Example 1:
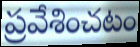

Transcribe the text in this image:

ప్రవేశించటం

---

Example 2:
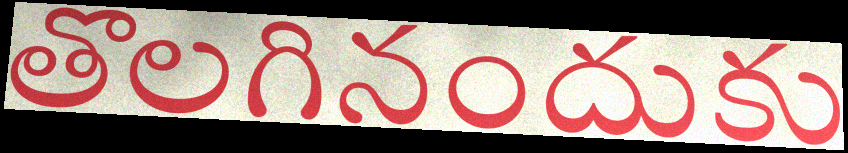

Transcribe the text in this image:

తొలగినందుకు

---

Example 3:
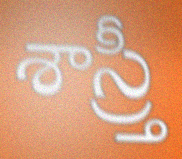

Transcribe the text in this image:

శాస్ర్తీ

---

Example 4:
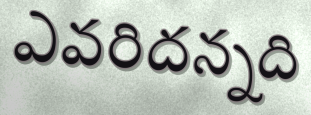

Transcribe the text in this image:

ఎవరిదన్నది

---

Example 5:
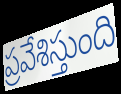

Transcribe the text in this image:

ప్రవేశిస్తుంది